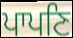
ਪਾਪਣਿ